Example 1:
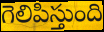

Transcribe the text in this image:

గెలిపిస్తుంది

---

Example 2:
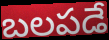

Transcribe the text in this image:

బలపడే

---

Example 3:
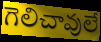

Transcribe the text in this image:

గెలిచావులే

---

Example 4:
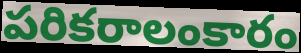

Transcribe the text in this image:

పరికరాలంకారం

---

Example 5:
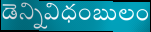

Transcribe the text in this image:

డెన్నివిధంబులం